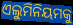
ଏଲୁମିନିୟମକୁ